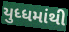
યુધ્ધમાંથી